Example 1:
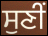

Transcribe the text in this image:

ਸੁਣੀਂ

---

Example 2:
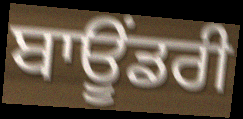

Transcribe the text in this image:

ਬਾਊਂਡਰੀ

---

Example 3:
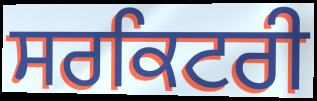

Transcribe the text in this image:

ਸਰਕਿਟਰੀ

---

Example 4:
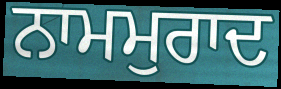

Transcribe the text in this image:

ਨਾਮਮੁਰਾਦ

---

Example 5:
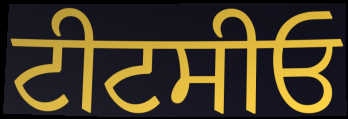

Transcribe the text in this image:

ਟੀਟਸੀਓ